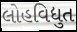
લોહવિદ્યુત